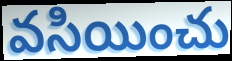
వసియించు